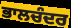
ਭਾਲਚੰਦਰ